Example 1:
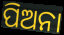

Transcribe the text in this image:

ପିଅନା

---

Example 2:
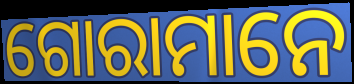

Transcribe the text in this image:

ଗୋରାମାନେ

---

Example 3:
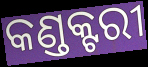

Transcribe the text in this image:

କଣ୍ଡକ୍ଟରୀ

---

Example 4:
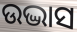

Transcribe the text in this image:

ଉଦ୍ଭାସ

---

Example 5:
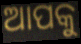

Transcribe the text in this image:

ଆପକୁ